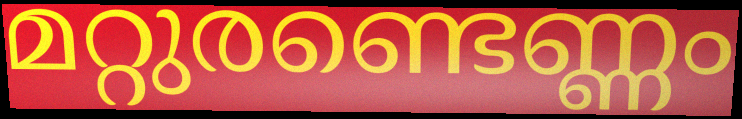
മറ്റുരണ്ടെണ്ണം